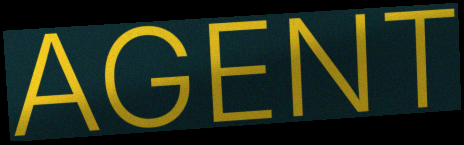
AGENT